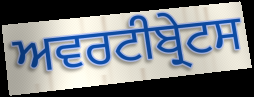
ਅਵਰਟੀਬ੍ਰੇਟਸ